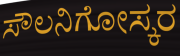
ಸೌಲನಿಗೋಸ್ಕರ